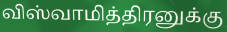
விஸ்வாமித்திரனுக்கு